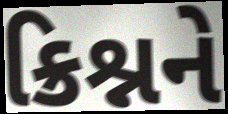
ક્રિશ્નને